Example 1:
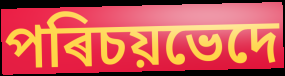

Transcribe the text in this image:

পৰিচয়ভেদে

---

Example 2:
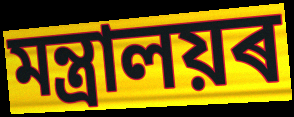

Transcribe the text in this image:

মন্ত্ৰালয়ৰ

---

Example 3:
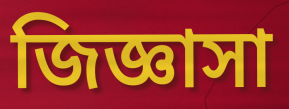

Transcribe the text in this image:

জিজ্ঞাসা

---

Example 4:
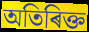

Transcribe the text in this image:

অতিৰিক্ত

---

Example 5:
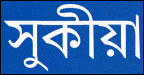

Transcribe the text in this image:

সুকীয়া